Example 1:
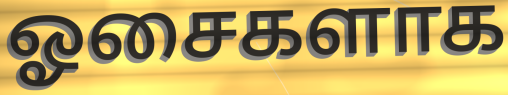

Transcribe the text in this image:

ஓசைகளாக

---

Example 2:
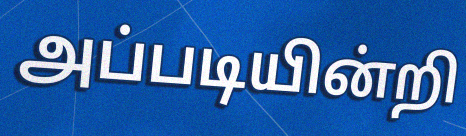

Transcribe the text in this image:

அப்படியின்றி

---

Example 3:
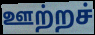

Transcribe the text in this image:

ஊற்றச்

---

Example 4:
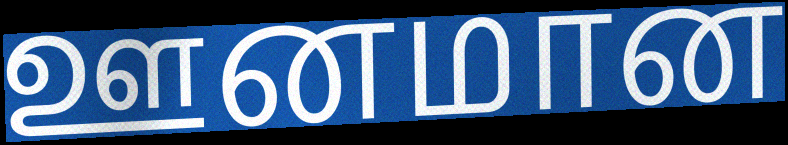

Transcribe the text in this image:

ஊனமான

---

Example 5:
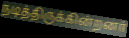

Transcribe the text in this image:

நடித்திருக்கின்றனர்